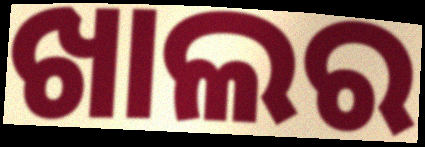
ଖାଲର